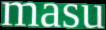
masu